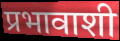
प्रभावाशी